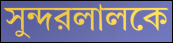
সুন্দরলালকে